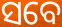
ସବେ